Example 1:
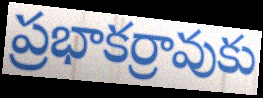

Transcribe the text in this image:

ప్రభాకర్రావుకు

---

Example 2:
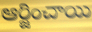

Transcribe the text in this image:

ఆర్జించాయి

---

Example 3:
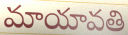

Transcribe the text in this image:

మాయావతి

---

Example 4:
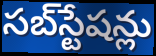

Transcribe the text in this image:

సబ్‌స్టేషన్లు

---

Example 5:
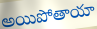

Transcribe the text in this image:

అయిపోతాయా